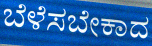
ಬೆಳೆಸಬೇಕಾದ